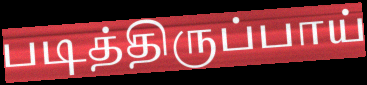
படித்திருப்பாய்